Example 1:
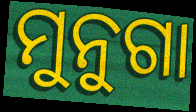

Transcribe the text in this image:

ମୁନୁଗା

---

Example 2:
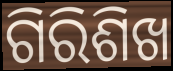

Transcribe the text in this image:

ଗିରିଶିଖ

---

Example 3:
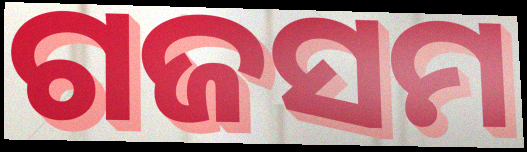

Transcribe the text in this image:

ଗଜସମ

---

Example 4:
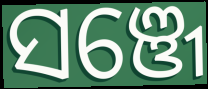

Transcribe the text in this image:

ସଞ୍ଜେ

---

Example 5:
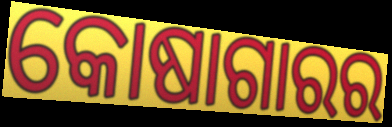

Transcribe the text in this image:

କୋଷାଗାରର